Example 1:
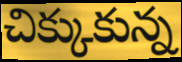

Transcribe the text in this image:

చిక్కుకున్న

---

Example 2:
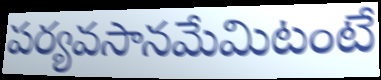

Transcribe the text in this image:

పర్యవసానమేమిటంటే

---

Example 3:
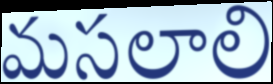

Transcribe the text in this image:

మసలాలి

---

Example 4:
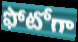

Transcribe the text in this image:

ఫోటోగా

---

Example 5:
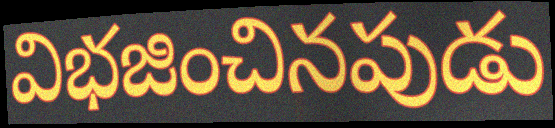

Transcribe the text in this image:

విభజించినపుడు